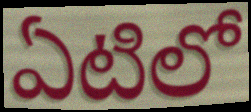
ఏటిలో